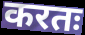
करतः